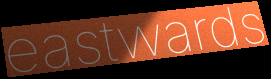
eastwards